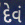
દેવં